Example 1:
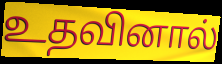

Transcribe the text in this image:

உதவினால்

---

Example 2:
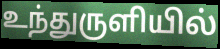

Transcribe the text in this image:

உந்துருளியில்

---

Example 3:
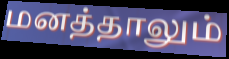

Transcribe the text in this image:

மனத்தாலும்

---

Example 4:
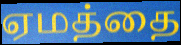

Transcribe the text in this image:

ஏமத்தை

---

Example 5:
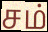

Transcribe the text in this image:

சம்